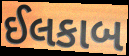
ઈલકાબ